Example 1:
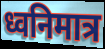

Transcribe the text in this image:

ध्वनिमात्र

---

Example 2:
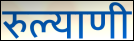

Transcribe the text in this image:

रुल्याणी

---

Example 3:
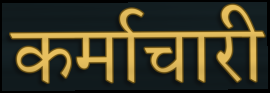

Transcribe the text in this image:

कर्माचारी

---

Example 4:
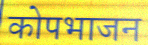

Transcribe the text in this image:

कोपभाजन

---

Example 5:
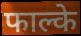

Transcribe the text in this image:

फाल्के